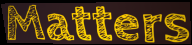
Matters